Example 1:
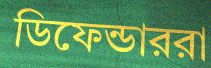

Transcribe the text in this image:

ডিফেন্ডাররা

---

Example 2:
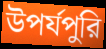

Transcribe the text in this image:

উপর্যপুরি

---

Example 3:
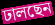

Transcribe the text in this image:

ঢালছেন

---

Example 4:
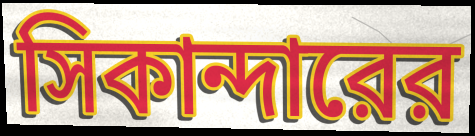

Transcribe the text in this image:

সিকান্দারের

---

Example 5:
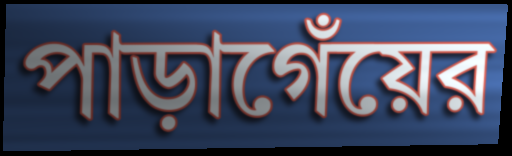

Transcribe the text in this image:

পাড়াগেঁয়ের